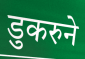
डुकरुने